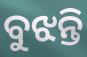
ବୁଝନ୍ତି